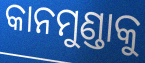
କାନମୁଣ୍ଡାକୁ